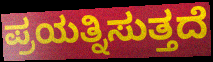
ಪ್ರಯತ್ನಿಸುತ್ತದೆ